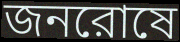
জনরোষে